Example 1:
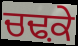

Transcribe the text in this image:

ਚਢ਼ਕੇ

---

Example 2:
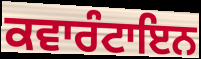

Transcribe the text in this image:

ਕਵਾਰੰਟਾਇਨ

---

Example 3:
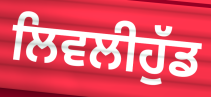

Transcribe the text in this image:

ਲਿਵਲੀਹੁੱਡ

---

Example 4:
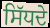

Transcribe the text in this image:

ਸਿੱਧਦੇ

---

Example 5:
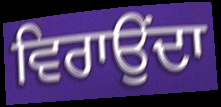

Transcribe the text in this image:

ਵਿਰਾਉਂਦਾ